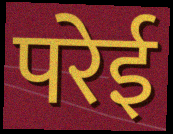
परेई